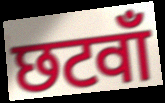
छटवाँ